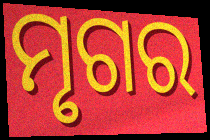
ମୃଗର